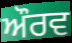
ਔਰਵ